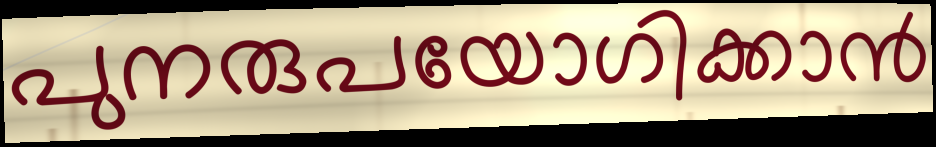
പുനരുപയോഗിക്കാൻ